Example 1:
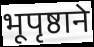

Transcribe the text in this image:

भूपृष्ठाने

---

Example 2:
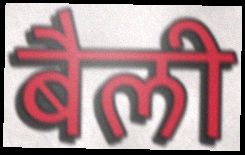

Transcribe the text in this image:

बैली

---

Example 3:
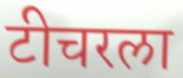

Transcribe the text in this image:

टीचरला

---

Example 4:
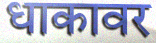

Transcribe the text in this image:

धाकावर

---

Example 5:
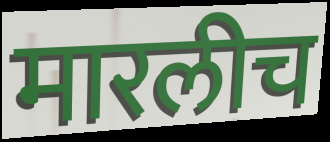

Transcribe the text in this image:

मारलीच